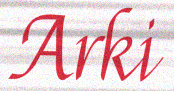
Arki